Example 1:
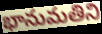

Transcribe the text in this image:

భానుమతిని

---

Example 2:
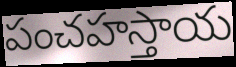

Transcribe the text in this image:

పంచహస్తాయ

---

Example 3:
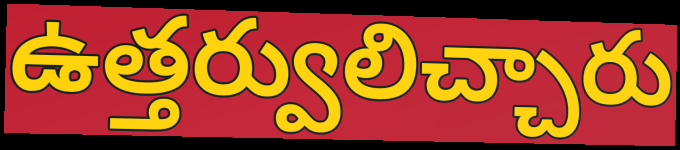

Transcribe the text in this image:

ఉత్తర్వులిచ్చారు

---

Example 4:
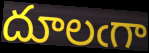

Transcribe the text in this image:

దూలఁగా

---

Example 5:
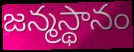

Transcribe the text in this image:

జన్మస్థానం